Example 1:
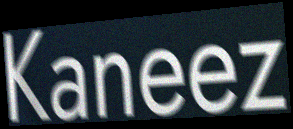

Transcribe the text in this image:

Kaneez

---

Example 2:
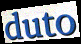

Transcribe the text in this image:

duto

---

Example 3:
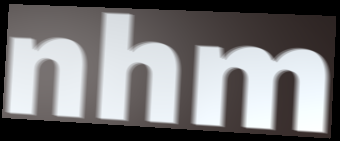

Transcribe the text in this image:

nhm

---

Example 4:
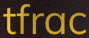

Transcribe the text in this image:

tfrac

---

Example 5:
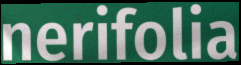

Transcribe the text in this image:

nerifolia